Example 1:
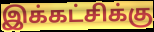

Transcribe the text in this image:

இக்கட்சிக்கு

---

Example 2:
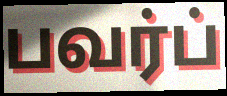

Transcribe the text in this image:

பவர்ப்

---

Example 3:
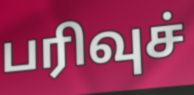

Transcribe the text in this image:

பரிவுச்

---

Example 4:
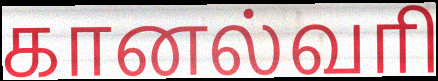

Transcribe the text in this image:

கானல்வரி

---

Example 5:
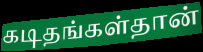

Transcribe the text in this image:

கடிதங்கள்தான்